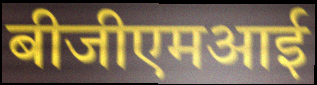
बीजीएमआई